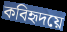
কবিহৃদয়ে